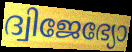
ദ്വിജേഭ്യോ